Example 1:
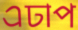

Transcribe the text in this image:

এঢাপ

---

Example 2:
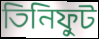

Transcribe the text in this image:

তিনিফুট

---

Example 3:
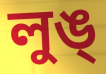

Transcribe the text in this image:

লুঙ্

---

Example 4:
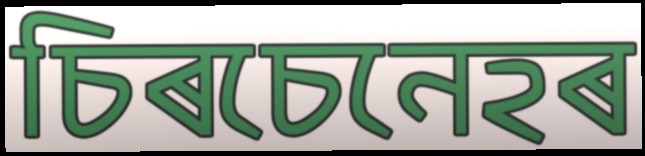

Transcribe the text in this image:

চিৰচেনেহৰ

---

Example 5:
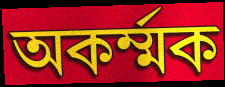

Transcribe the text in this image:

অকৰ্ম্মক